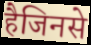
हैजिनसे